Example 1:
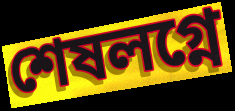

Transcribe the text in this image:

শেষলগ্নে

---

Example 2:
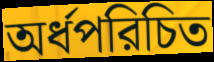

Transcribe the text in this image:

অর্ধপরিচিত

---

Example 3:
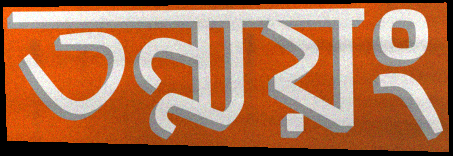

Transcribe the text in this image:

তন্ময়ং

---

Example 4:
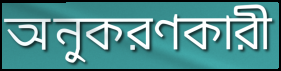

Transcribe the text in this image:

অনুকরণকারী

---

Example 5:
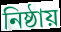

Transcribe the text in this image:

নিষ্ঠায়